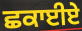
ਛਕਾਈਏ